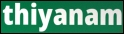
thiyanam